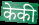
केकी